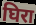
घिरा